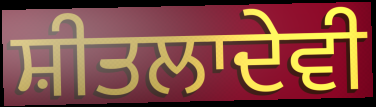
ਸ਼ੀਤਲਾਦੇਵੀ